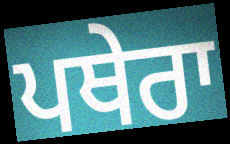
ਪਥੇਰਾ